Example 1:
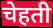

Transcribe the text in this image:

चेहती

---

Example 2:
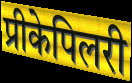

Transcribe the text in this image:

प्रीकेपिलरी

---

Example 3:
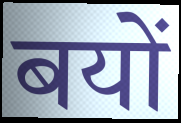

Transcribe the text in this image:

बयों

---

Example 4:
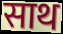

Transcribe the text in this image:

साथ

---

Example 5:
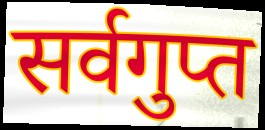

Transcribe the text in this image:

सर्वगुप्त